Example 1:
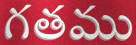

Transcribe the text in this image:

గతము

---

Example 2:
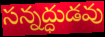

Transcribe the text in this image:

సన్నద్ధుడవు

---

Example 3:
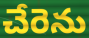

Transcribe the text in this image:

చేరెను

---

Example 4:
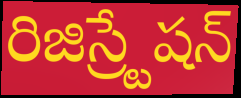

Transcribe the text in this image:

రిజిస్ర్టేషన్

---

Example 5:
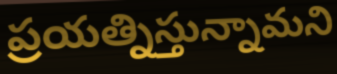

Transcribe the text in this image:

ప్రయత్నిస్తున్నామని